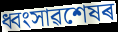
ধ্বংসাৱশেষৰ